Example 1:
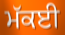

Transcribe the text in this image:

ਮੱਕਈ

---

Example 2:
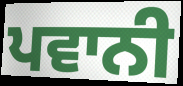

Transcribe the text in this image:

ਪਵਾਨੀ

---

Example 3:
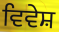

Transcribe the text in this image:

ਵਿਵੇਸ਼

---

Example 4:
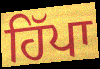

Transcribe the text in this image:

ਹਿੱਪਾ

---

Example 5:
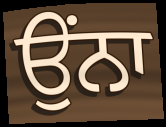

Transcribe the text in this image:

ਉੰਨਾ